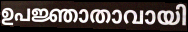
ഉപജ്ഞാതാവായി